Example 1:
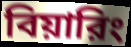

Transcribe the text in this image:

বিয়ারিং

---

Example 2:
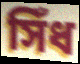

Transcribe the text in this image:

সিঁধ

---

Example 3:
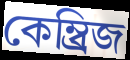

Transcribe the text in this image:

কেম্ব্রিজ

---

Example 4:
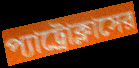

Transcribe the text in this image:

প্যাট্রোক্লাসের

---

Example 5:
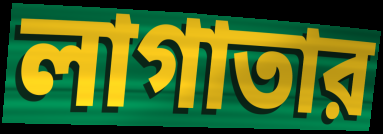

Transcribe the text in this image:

লাগাতার